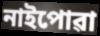
নাইপোৱা